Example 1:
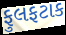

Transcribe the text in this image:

ફુલફટાક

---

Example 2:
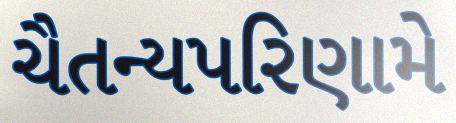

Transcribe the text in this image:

ચૈતન્યપરિણામે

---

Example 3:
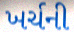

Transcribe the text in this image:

ખર્ચની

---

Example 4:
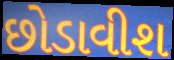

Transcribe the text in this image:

છોડાવીશ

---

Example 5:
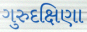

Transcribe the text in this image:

ગુરુદક્ષિણા